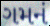
ગમનં